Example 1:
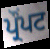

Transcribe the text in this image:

ਪ੍ਰੌੰਪਟ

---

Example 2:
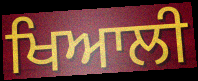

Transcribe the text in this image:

ਖਿਆਲੀ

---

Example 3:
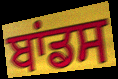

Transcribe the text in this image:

ਬਾਂਡਸ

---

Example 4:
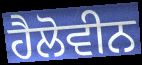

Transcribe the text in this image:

ਹੈਲੋਵੀਨ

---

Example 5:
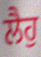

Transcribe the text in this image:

ਲੈਹੁ